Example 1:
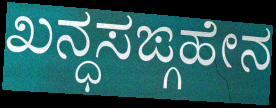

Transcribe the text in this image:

ಖನ್ಧಸಙ್ಗಹೇನ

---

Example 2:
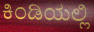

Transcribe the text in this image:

ಕಿಂಡಿಯಲ್ಲಿ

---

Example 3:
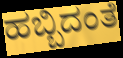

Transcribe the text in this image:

ಹಬ್ಬಿದಂತೆ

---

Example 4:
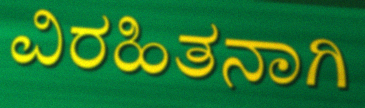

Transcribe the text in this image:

ವಿರಹಿತನಾಗಿ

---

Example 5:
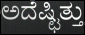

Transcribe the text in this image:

ಅದೆಷ್ಟಿತ್ತು